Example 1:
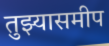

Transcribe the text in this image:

तुझ्यासमीप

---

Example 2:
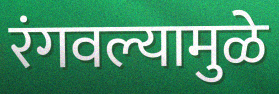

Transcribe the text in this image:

रंगवल्यामुळे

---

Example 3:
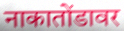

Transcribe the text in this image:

नाकातोंडावर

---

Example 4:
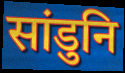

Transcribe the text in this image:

सांडुनि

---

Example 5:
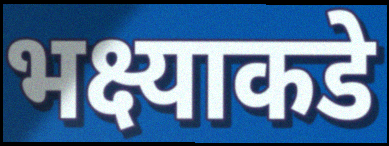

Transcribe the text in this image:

भक्ष्याकडे